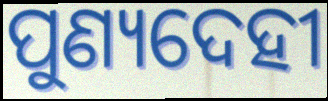
ପୁଣ୍ୟଦେହୀ